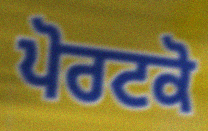
ਪੋਰਟਕੋ